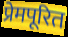
प्रेमपूरित